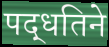
पद्धतिने